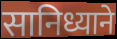
सानिध्याने